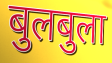
बुलबुला